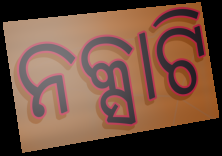
ନକ୍ସାଟି